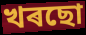
খৰছো